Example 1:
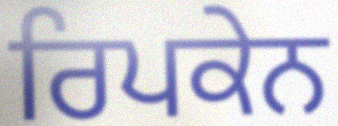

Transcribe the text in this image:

ਰਿਪਕੇਨ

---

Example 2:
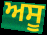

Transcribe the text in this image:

ਅਸੂ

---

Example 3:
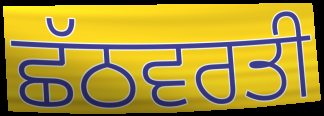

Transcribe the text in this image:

ਛੱਠਵਰਤੀ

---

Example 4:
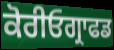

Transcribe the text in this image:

ਕੋਰੀਓਗ੍ਰਾਫਡ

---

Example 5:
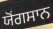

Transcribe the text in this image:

ਯੋਂਗਸਾਨ